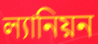
ল্যানিয়ন